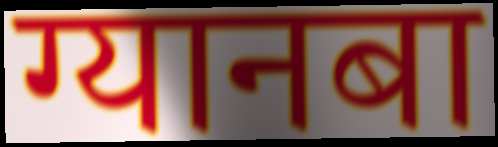
ग्यानबा